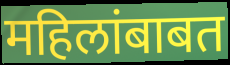
महिलांबाबत